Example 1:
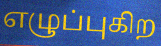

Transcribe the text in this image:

எழுப்புகிற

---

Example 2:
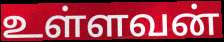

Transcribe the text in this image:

உள்ளவன்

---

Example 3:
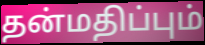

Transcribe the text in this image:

தன்மதிப்பும்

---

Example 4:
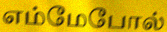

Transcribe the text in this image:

எம்மேபோல்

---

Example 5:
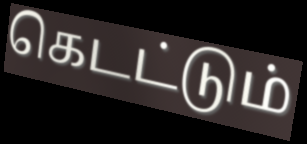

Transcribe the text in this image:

கெடட்டும்